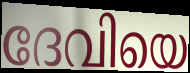
ദേവിയെ